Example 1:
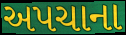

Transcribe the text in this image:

અપચાના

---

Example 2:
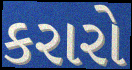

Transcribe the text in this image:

કરારો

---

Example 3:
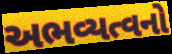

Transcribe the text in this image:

અભવ્યત્વનો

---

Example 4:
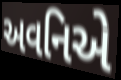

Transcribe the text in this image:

અવનિએ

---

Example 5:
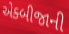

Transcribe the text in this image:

એક્બીજાની